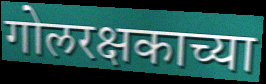
गोलरक्षकाच्या